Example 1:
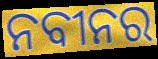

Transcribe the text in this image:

ନବୀନର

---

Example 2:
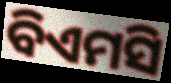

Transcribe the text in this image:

ବିଏମସି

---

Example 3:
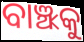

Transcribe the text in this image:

ବାଞ୍ଝକୁ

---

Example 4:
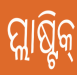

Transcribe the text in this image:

ପ୍ଲାଷ୍ଟିକ୍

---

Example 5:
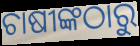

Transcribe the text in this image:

ଚାଷୀଙ୍କଠାରୁ